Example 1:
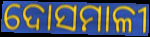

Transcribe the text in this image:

ଦୋସମାଳୀ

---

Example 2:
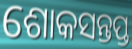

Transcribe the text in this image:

ଶୋକସନ୍ତପ୍ତ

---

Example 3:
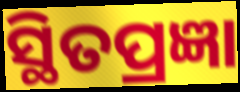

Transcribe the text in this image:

ସ୍ଥିତପ୍ରଜ୍ଞା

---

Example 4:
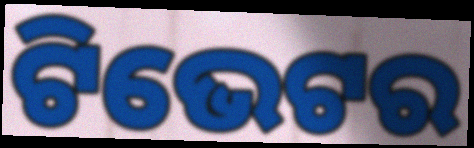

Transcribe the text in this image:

ଟିଭେଟର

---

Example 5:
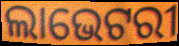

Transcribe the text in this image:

ଲାଭେଟରୀ